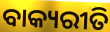
ବାକ୍ୟରୀତି